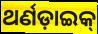
ଥର୍ଣଡ଼ାଇକ୍